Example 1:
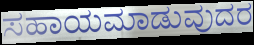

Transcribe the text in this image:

ಸಹಾಯಮಾಡುವುದರ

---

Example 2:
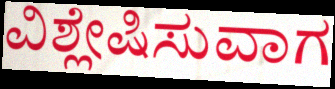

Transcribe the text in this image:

ವಿಶ್ಲೇಷಿಸುವಾಗ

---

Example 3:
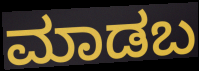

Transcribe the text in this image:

ಮಾಡಬ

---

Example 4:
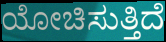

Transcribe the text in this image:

ಯೋಚಿಸುತ್ತಿದೆ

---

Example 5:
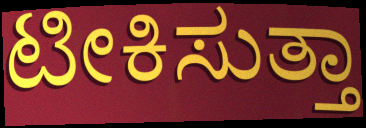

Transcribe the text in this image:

ಟೀಕಿಸುತ್ತಾ